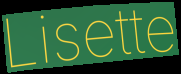
Lisette